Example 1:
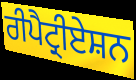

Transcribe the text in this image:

ਰੀਪੈਟ੍ਰੀਏਸ਼ਨ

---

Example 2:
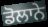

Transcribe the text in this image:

ਡੋਲਾਨੇ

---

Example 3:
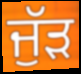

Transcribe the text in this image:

ਜੁੱੜ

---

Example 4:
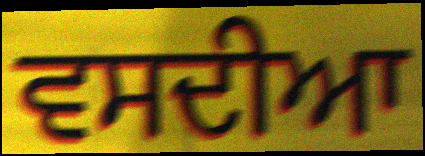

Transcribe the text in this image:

ਵਸਦੀਆ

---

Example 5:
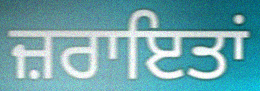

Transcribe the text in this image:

ਜ਼ਰਾਇਤਾਂ